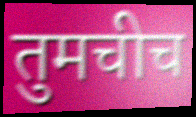
तुमचीच